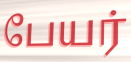
பேயர்